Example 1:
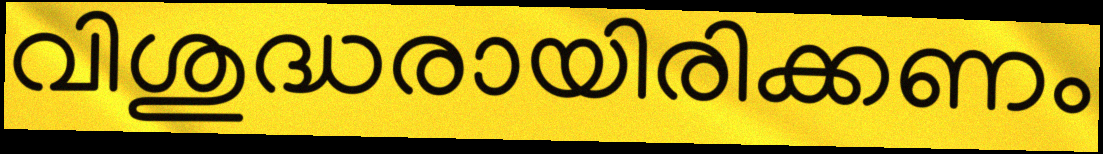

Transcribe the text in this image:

വിശുദ്ധരായിരിക്കണം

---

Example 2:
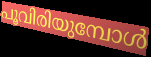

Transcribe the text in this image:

പൂവിരിയുമ്പോൾ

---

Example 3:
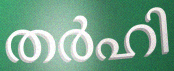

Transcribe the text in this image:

തർഹി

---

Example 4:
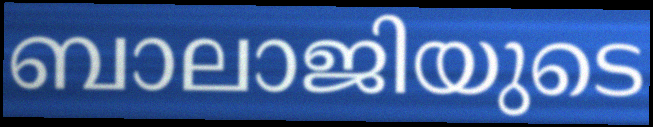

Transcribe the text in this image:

ബാലാജിയുടെ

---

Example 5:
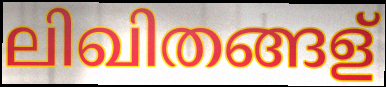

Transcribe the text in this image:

ലിഖിതങ്ങള്